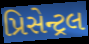
પ્રિસેન્ટ્રલ